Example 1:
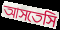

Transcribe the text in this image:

আসতেসি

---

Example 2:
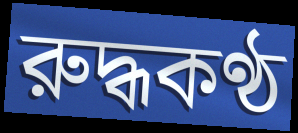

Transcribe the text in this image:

রুদ্ধকণ্ঠ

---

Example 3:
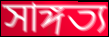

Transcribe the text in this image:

সাঙ্গত্য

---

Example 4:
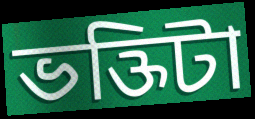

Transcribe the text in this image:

ভক্তিটা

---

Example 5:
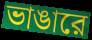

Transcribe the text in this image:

ভাঙারে